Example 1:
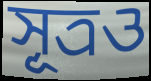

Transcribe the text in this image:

সূত্ৰও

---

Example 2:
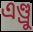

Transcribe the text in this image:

এণ্ড্ৰু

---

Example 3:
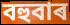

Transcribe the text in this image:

বহুবাৰ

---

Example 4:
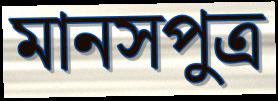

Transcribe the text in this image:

মানসপুত্ৰ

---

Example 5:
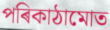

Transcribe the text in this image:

পৰিকাঠামোত